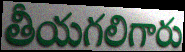
తీయగలిగారు